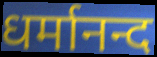
धर्मानन्द